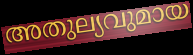
അതുല്യവുമായ